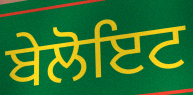
ਬੇਲੋਇਟ